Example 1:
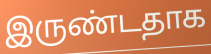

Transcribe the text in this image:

இருண்டதாக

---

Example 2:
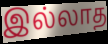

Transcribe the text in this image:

இல்லாத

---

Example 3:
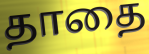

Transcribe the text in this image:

தாதை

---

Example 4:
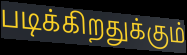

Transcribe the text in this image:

படிக்கிறதுக்கும்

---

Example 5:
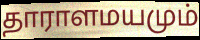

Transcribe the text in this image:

தாராளமயமும்